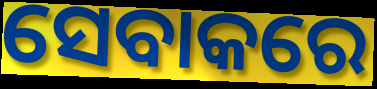
ସେବାକରେ